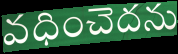
వధించెదను